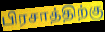
பிரசாத்திற்கு